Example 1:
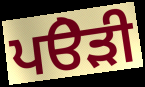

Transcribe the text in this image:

ਪੳੇੜੀ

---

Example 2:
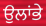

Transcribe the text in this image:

ਉਲਾਂਭੇ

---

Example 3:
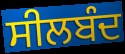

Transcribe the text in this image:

ਸੀਲਬੰਦ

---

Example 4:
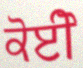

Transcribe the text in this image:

ਕੋਈੋ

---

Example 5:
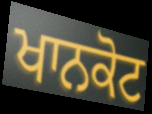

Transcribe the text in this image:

ਖਾਨਕੋਟ